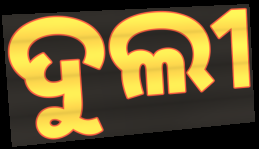
ଦୁଲୀ